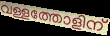
വള്ളത്തോളിന്